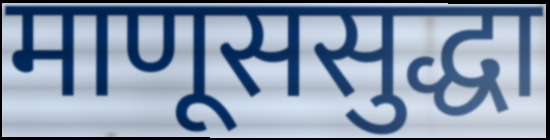
माणूससुद्धा